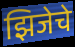
झिजेचे